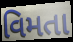
વિમતા